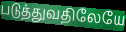
படுத்துவதிலேயே